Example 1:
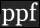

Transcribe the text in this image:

ppf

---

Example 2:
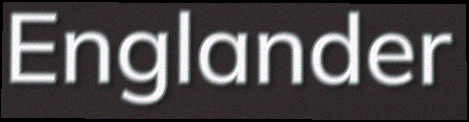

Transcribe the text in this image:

Englander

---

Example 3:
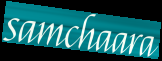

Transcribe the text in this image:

samchaara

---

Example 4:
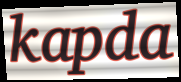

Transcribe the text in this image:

kapda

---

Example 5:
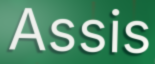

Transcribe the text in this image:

Assis